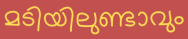
മടിയിലുണ്ടാവും